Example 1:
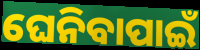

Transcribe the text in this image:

ଘେନିବାପାଇଁ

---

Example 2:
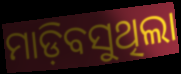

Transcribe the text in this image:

ମାଡ଼ିବସୁଥିଲା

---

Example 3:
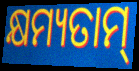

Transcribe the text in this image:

କ୍ଷମ୍ୟତାମ୍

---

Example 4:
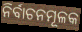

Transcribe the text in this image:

ନିର୍ବାଚନମୂଳକ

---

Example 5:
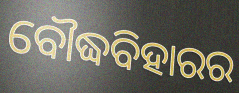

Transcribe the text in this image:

ବୌଦ୍ଧବିହାରର